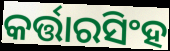
କର୍ତ୍ତାରସିଂହ